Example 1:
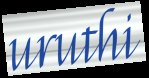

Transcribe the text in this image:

uruthi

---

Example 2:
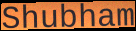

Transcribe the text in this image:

Shubham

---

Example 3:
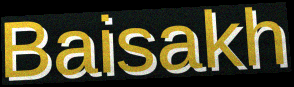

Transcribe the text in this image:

Baisakh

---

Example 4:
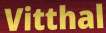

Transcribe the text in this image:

Vitthal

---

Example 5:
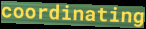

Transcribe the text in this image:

coordinating